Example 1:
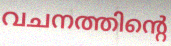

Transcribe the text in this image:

വചനത്തിന്റെ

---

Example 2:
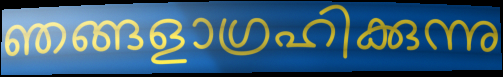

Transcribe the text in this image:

ഞങ്ങളാഗ്രഹിക്കുന്നു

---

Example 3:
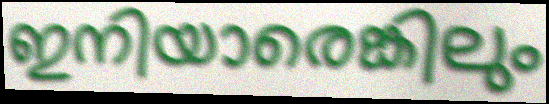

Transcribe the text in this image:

ഇനിയാരെങ്കിലും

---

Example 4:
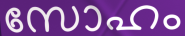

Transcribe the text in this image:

സോഹം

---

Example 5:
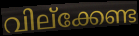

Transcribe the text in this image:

വില്ക്കേണ്ട